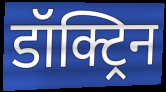
डॉक्ट्रिन